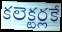
కలెక్టర్లకే